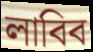
লাবিব